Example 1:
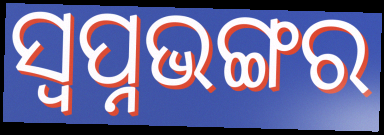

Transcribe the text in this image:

ସ୍ୱପ୍ନଭଙ୍ଗର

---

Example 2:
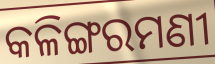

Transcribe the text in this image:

କଳିଙ୍ଗରମଣୀ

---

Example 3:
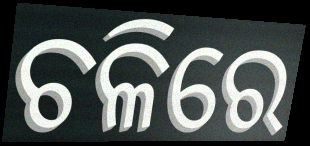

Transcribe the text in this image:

ଚଳିରେ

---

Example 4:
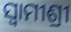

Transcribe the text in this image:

ସ୍ଵାମୀଶ୍ରୀ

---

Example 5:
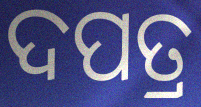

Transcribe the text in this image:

ଦପତ୍ର